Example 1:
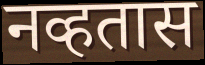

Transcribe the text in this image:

नव्हतास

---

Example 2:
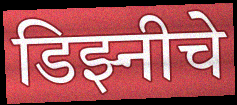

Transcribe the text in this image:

डिझ्नीचे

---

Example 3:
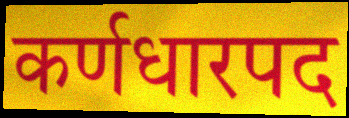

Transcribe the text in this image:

कर्णधारपद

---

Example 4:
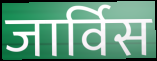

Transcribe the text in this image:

जार्विस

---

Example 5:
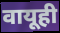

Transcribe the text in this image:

वायूही